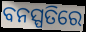
ବନସ୍ପତିରେ